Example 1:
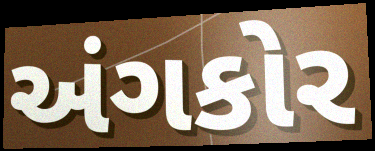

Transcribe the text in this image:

અંગકોર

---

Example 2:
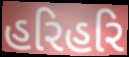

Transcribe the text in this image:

હરિહરિ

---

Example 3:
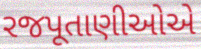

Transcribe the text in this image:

રજપૂતાણીઓએ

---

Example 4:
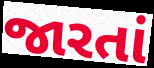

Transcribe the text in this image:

જારતાં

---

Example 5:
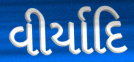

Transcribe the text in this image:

વીર્યાદિ